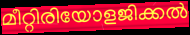
മീറ്റിരിയോളജിക്കൽ